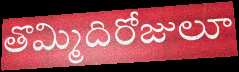
తొమ్మిదిరోజులూ